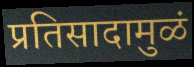
प्रतिसादामुळं